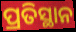
ପ୍ରତିସ୍ଥାନ